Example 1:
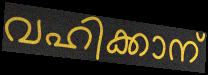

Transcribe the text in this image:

വഹിക്കാന്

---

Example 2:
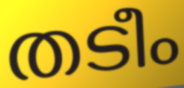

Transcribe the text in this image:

തടീം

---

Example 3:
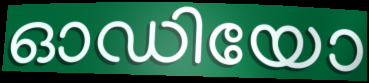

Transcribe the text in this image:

ഓഡിയോ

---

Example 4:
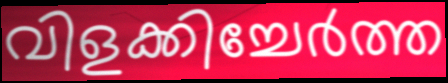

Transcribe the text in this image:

വിളക്കിച്ചേർത്ത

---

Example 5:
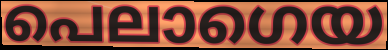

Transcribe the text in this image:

പെലാഗെയ